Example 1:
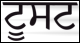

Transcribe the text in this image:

ਟੂਸਟ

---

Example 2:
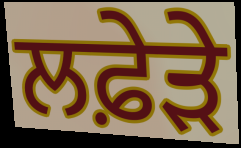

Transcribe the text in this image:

ਲਫ਼ੇੜੇ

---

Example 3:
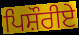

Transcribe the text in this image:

ਪਿਸ਼ੌਰੀਏ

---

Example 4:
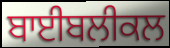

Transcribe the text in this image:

ਬਾਈਬਲੀਕਲ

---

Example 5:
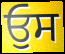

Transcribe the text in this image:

ਓੁਸ